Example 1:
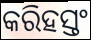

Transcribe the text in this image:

କରିହସ୍ତଂ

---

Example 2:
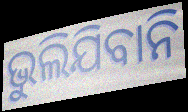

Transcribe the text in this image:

ଭୁଲିଯିବାନି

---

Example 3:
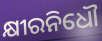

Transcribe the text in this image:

କ୍ଷୀରନିଧୌ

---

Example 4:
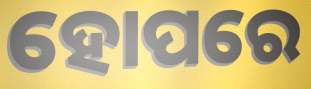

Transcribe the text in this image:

ହୋପରେ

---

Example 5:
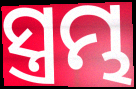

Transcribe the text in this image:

ସ୍ତ୍ରମ୍ଭ